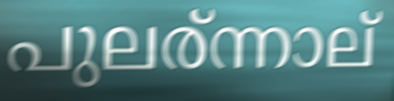
പുലര്ന്നാല്